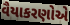
વૈયાકરણોએ